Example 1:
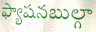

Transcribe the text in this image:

ఫ్యాషనబుల్గా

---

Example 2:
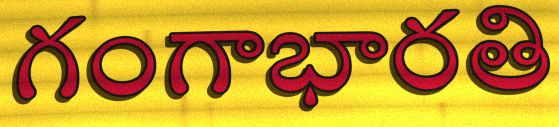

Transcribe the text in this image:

గంగాభారతి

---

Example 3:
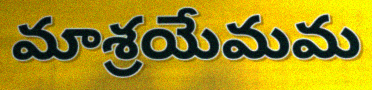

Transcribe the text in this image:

మాశ్రయేమమ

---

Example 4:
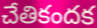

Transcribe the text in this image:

చేతికందక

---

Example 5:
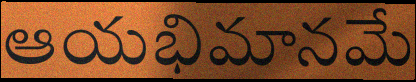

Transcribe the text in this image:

ఆయభిమానమే